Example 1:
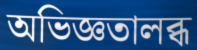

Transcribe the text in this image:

অভিজ্ঞতালব্ধ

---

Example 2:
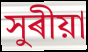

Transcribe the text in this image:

সুৰীয়া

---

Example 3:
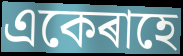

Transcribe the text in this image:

একেৰাহে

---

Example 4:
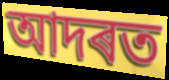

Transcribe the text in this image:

আদৰত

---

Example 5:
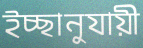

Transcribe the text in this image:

ইচ্ছানুযায়ী